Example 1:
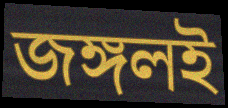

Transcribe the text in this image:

জঙ্গলই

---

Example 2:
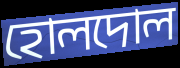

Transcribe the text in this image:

হোলদোল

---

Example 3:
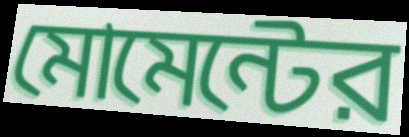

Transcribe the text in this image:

মোমেন্টের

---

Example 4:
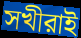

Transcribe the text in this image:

সখীরাই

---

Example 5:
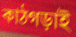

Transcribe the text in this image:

কাঠগড়াই